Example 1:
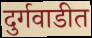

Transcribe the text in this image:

दुर्गवाडीत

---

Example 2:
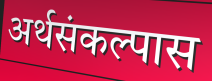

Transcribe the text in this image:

अर्थसंकल्पास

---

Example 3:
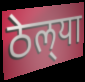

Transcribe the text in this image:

ठेल्या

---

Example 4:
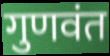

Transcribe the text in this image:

गुणवंत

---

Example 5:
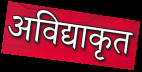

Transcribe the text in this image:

अविद्याकृत